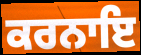
ਕਰਨਾਇ